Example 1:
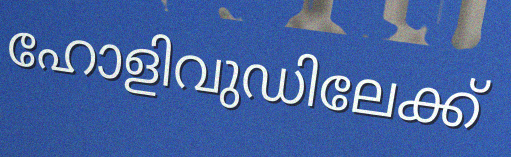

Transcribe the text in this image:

ഹോളിവുഡിലേക്ക്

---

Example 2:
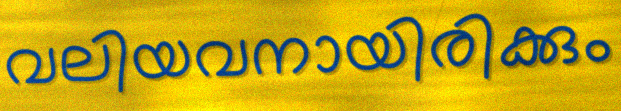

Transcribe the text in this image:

വലിയവനായിരിക്കും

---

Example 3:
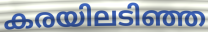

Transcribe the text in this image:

കരയിലടിഞ്ഞ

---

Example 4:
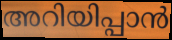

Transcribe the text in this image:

അറിയിപ്പാൻ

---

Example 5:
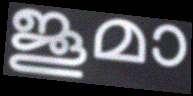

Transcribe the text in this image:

ജൂമാ